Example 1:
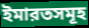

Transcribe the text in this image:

ইমারতসমূহ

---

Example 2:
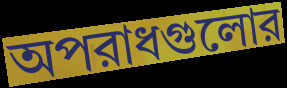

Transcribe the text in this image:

অপরাধগুলোর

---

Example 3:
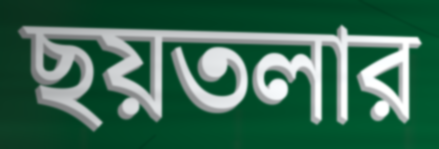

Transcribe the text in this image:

ছয়তলার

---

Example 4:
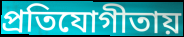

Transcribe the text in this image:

প্রতিযোগীতায়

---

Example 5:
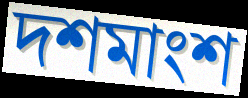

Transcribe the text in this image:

দশমাংশ